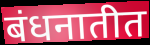
बंधनातीत